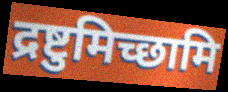
द्रष्टुमिच्छामि